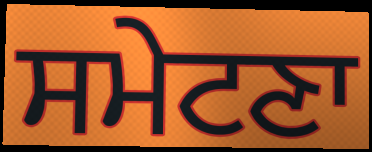
ਸਮੇਟਣਾ